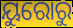
ୟୁରୋରୁ